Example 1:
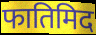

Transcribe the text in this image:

फातिमिद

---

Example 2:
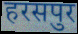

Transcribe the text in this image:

हरसपुर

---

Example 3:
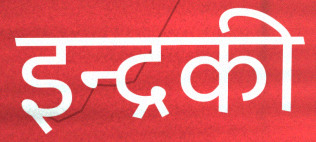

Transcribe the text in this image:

इन्द्रकी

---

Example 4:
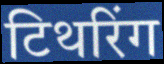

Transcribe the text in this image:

टिथरिंग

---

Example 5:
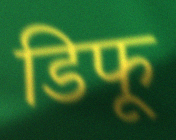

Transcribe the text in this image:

डिफू